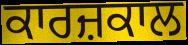
ਕਾਰਜ਼ਕਾਲ